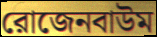
রোজেনবাউম